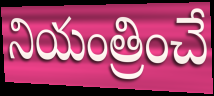
నియంత్రించే